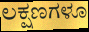
ಲಕ್ಷಣಗಳೂ